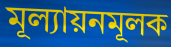
মূল্যায়নমূলক